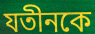
যতীনকে